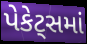
પેકેટ્સમાં